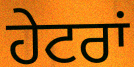
ਹੇਟਰਾਂ